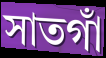
সাতগাঁ